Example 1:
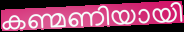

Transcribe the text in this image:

കണ്മണിയായി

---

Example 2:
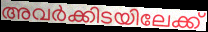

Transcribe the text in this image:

അവർക്കിടയിലേക്ക്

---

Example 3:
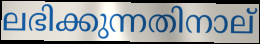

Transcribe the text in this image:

ലഭിക്കുന്നതിനാല്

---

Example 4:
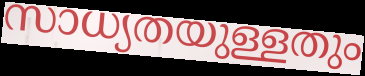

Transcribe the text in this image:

സാധ്യതയുള്ളതും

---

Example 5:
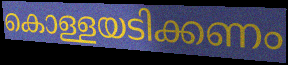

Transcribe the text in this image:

കൊള്ളയടിക്കണം